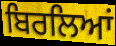
ਬਿਰਲਿਆਂ